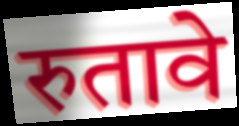
रुतावे